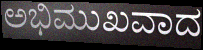
ಅಭಿಮುಖವಾದ